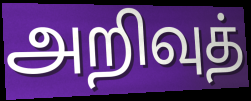
அறிவுத்